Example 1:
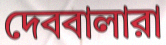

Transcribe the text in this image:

দেববালারা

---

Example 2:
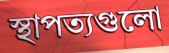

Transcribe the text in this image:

স্থাপত্যগুলো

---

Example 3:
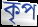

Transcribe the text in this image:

কৃপ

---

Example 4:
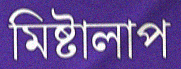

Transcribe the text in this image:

মিষ্টালাপ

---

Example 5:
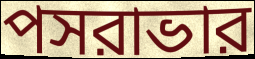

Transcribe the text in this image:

পসরাভার